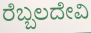
ರೆಬ್ಬಲದೇವಿ